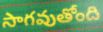
సాగవుతోంది